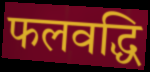
फलवद्धि